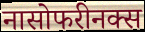
नासोफरीनक्स